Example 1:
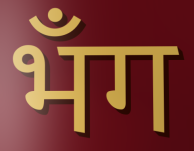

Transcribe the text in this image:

भँग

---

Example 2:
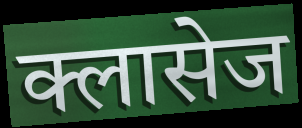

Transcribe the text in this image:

क्लासेज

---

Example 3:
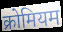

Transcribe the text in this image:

क्रोमियम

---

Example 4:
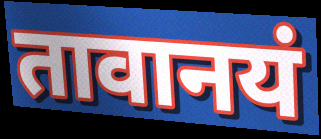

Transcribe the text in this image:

तावानयं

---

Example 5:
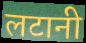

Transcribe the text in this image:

लटानी